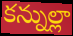
కన్నుల్లా